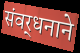
संवर्धनाने